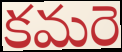
కమరె